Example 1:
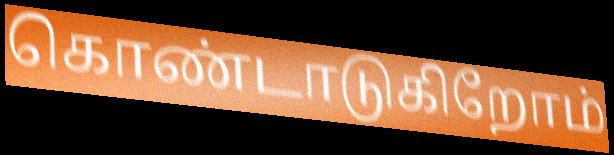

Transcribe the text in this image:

கொண்டாடுகிறோம்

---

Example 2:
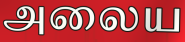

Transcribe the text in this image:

அலைய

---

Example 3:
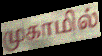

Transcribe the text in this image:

முகாமில்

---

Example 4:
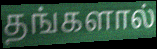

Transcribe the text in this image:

தங்களால்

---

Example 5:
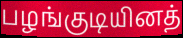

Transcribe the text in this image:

பழங்குடியினத்